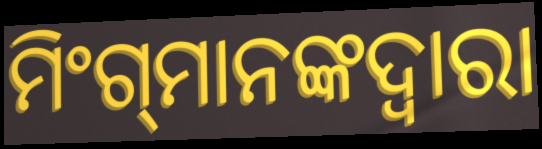
ମିଂଗ୍‍ମାନଙ୍କଦ୍ୱାରା